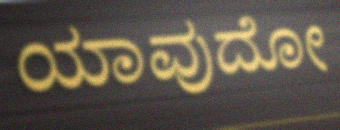
ಯಾವುದೋ